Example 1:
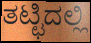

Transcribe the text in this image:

ತಟ್ಟಿದಲ್ಲಿ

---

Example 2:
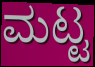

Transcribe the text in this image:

ಮಟ್ಟ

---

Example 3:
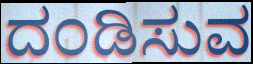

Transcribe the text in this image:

ದಂಡಿಸುವ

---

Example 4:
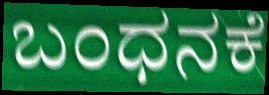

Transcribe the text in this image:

ಬಂಧನಕೆ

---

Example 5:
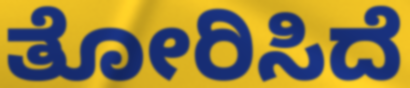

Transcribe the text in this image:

ತೋರಿಸಿದೆ